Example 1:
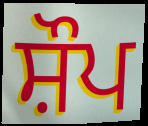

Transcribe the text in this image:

ਸ਼ੌਪ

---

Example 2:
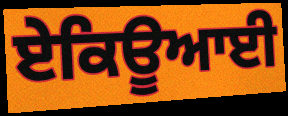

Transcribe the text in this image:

ਏਕਿਊਆਈ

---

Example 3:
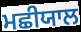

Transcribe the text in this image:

ਮਛੀਯਾਲ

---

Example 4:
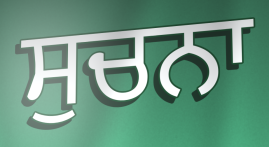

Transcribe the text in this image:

ਸੁਚਨਾ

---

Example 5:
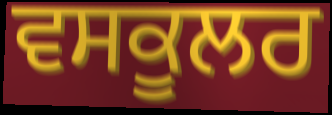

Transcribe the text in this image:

ਵਸਕੂਲਰ